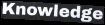
Knowledge